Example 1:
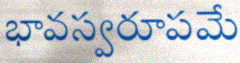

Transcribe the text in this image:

భావస్వరూపమే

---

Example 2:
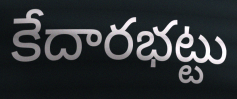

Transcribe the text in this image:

కేదారభట్టు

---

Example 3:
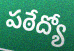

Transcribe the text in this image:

పఠేద్యో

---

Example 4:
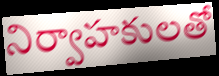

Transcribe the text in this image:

నిర్వాహకులతో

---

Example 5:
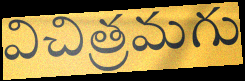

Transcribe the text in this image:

విచిత్రమగు